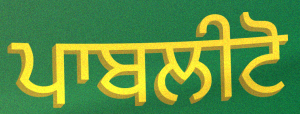
ਪਾਬਲੀਟੋ